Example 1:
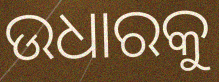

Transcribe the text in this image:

ଉଧାରକୁ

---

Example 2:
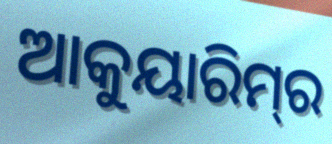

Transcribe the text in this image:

ଆକୁୟାରିମ୍‌ର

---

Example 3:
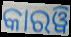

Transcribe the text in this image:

କାରୱି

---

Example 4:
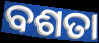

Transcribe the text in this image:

ବଶତା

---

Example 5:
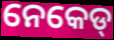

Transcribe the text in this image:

ନେକେଡ୍